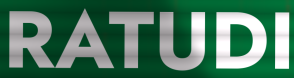
RATUDI